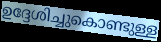
ഉദ്ദേശിച്ചുകൊണ്ടുള്ള